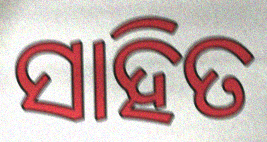
ସାହିତ